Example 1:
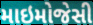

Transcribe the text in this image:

માઇમોજેસી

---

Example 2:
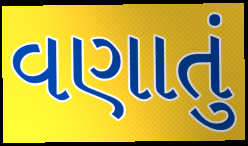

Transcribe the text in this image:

વણાતું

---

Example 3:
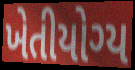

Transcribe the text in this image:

ખેતીયોગ્ય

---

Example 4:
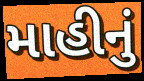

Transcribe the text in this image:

માહીનું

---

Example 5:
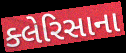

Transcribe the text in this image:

ક્લેરિસાના